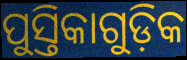
ପୁସ୍ତିକାଗୁଡ଼ିକ